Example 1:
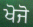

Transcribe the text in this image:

ਖੋਜੋ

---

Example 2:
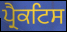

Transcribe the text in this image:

ਪ੍ਰੈਕਟਿਸ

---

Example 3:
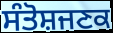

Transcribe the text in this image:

ਸੰਤੋਸ਼ਜਣਕ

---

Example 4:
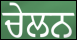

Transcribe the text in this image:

ਚੇਲਨ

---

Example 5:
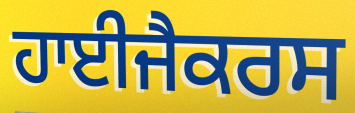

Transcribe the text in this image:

ਹਾਈਜੈਕਰਸ